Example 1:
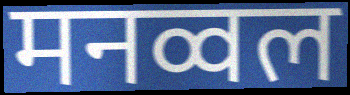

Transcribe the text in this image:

मनव्वल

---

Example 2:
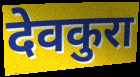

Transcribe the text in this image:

देवकुरा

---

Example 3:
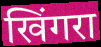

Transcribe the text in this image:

खिंगरा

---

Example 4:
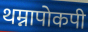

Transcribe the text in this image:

थम्नापोकपी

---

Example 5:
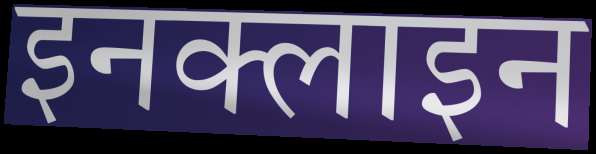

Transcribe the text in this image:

इनक्लाइन